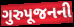
ગુરુપૂજનની